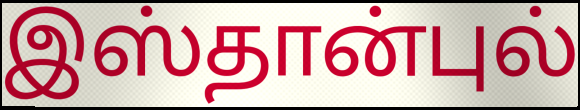
இஸ்தான்புல்